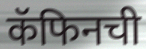
कॅफिनची